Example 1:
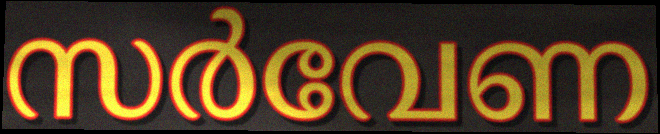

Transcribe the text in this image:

സർവേണ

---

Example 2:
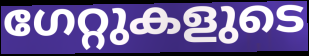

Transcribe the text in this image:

ഗേറ്റുകളുടെ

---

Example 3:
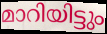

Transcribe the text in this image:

മാറിയിട്ടും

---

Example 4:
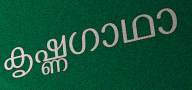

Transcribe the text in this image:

കൃഷ്ണഗാഥാ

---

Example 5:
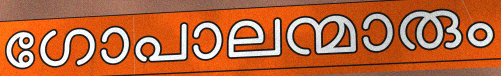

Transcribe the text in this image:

ഗോപാലന്മാരും